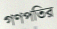
গণপতির